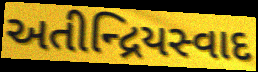
અતીન્દ્રિયસ્વાદ